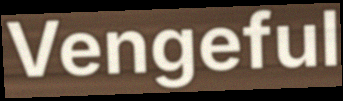
Vengeful